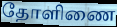
தோளிணை